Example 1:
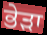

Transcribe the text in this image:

ਭੇੜਾ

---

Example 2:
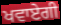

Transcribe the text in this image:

ਖਵਾਏਗੀ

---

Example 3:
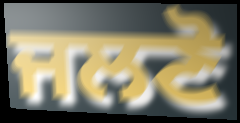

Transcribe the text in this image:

ਜਲਣੋ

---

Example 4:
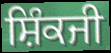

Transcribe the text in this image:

ਸ਼ਿੰਕਜੀ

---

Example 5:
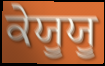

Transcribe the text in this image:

ਕੇਯੂਯੂ